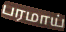
பரமாய்